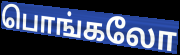
பொங்கலோ